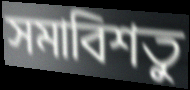
সমাবিশতু